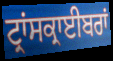
ਟ੍ਰਾਂਸਕ੍ਰਾਈਬਰਾਂ